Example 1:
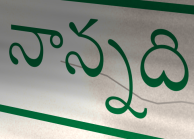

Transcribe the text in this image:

నాన్నది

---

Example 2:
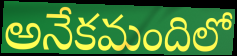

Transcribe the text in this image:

అనేకమందిలో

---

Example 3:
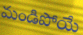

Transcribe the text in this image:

మండిపోయే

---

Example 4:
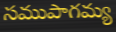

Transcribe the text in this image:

సముపాగమ్య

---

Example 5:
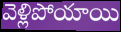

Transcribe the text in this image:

వెళ్లిపోయాయి